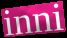
inni